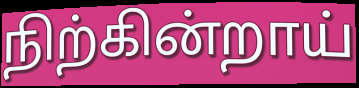
நிற்கின்றாய்